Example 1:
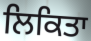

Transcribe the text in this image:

ਲਿਕਿਤਾ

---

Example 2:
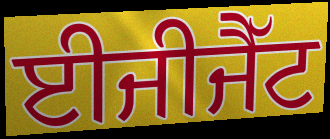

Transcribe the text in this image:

ਈਜੀਜੈੱਟ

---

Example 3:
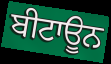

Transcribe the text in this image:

ਬੀਟਾਊਨ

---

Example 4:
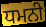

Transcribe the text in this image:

ਧਮਨੀ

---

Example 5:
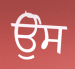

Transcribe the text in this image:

ਉੋਸ